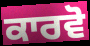
ਕਾਰਵੋ